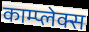
काम्प्लेक्स